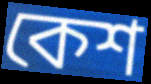
কেশ